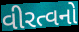
વીરત્વનો